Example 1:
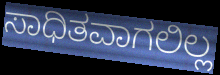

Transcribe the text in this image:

ಸಾಧಿತವಾಗಲಿಲ್ಲ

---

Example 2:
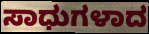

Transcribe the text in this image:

ಸಾಧುಗಳಾದ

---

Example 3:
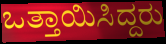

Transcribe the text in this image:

ಒತ್ತಾಯಿಸಿದ್ದರು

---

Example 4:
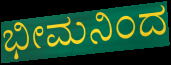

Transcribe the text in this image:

ಭೀಮನಿಂದ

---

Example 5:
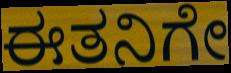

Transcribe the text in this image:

ಈತನಿಗೇ